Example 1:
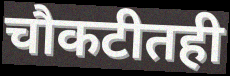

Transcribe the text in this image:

चौकटीतही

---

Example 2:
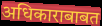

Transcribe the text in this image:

अधिकाराबाबत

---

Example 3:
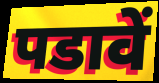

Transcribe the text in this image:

पडावें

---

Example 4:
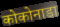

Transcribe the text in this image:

कोकोनाडा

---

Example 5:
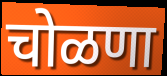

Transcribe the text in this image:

चोळणा